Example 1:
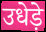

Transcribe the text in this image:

उधेड़े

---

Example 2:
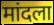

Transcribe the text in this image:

मांदला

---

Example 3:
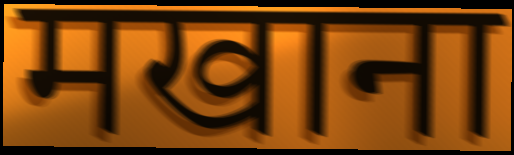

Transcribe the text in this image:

मखाना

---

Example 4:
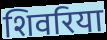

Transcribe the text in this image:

शिवरिया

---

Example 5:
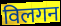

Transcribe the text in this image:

विलगन